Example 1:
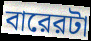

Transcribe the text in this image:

বারেরটা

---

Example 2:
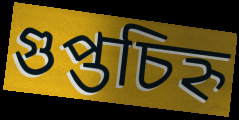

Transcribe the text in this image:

গুপ্তচিহ্ন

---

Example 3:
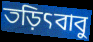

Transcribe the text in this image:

তড়িৎবাবু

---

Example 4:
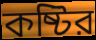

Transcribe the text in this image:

কষ্টির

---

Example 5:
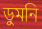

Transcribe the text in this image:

ডুমনি